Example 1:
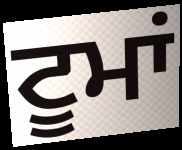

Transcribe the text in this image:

ਟੂਮਾਂ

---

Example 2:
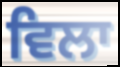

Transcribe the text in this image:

ਵਿਲਾ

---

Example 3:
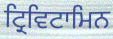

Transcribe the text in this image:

ਟ੍ਰਿਵਿਟਾਮਿਨ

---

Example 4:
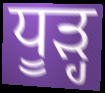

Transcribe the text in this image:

ਧੂੜ੍ਹ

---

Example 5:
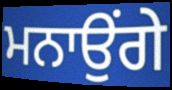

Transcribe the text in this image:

ਮਨਾਉਂਗੇ